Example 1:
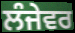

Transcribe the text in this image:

ਲੰਜੇਵਰ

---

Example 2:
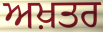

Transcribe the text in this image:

ਅਖ਼ਤਰ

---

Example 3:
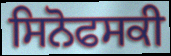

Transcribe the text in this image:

ਸਿਨੋਫਸਕੀ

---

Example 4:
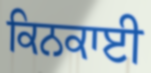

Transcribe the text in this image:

ਕਿਨਕਾਈ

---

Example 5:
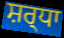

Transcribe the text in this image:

ਸ਼ਰ੍ਧਾ